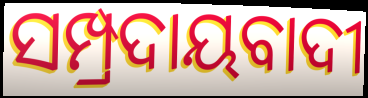
ସମ୍ପ୍ରଦାୟବାଦୀ